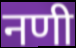
नणी